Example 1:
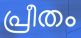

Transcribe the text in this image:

പ്രീതം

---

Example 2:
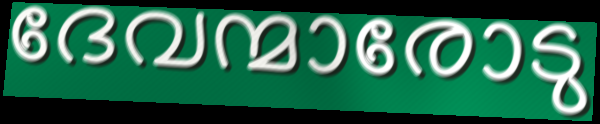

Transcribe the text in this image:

ദേവന്മാരോടു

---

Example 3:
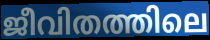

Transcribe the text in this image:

ജീവിതത്തിലെ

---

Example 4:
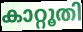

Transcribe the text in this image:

കാറ്റൂതി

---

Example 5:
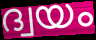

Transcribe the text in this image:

ദ്വയം